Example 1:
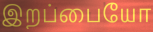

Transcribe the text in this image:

இறப்பையோ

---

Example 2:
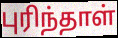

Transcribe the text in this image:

புரிந்தாள்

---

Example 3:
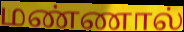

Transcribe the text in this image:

மண்ணால்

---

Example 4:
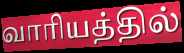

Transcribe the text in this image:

வாரியத்தில்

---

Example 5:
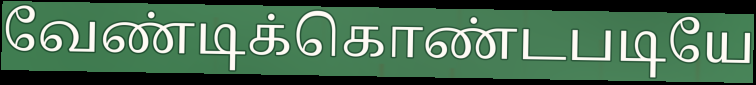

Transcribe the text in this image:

வேண்டிக்கொண்டபடியே